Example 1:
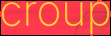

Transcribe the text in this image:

croup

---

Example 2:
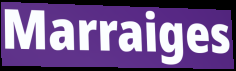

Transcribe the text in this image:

Marraiges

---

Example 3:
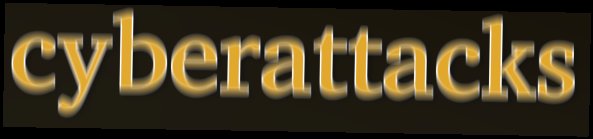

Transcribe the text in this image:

cyberattacks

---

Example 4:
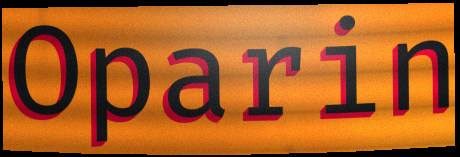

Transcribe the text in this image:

Oparin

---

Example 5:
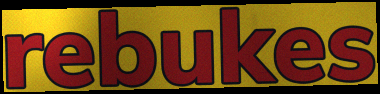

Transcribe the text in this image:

rebukes